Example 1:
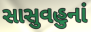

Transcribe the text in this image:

સાસુવહુનાં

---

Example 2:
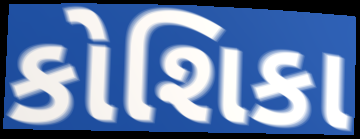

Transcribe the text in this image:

કોશિકા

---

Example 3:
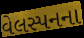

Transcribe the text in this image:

વેલસ્પનના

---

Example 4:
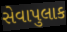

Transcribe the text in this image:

સેવાપુલાક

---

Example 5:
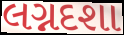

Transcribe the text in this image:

લગ્નદશા